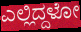
ಎಲ್ಲಿದ್ದಳೋ